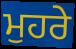
ਮੁਹਰੇ